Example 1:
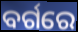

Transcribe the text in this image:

ବର୍ଗରେ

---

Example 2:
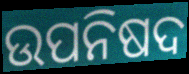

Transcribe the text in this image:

ଉପନିଷଦ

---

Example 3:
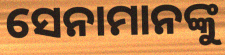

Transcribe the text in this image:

ସେନାମାନଙ୍କୁ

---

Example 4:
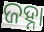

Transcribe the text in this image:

ଜହ୍ନା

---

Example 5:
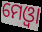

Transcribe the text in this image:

ମେଓ୍ୱା